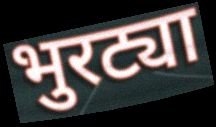
भुरट्या